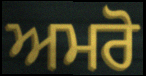
ਅਮਰੋ